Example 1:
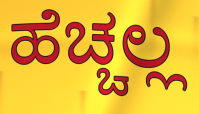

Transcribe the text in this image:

ಹೆಚ್ಚಲ್ಲ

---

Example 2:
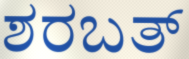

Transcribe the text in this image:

ಶರಬತ್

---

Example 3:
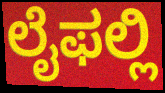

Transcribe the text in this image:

ಲೈಫಲ್ಲಿ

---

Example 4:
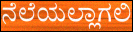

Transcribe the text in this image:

ನೆಲೆಯಲ್ಲಾಗಲಿ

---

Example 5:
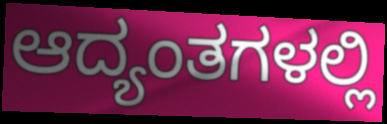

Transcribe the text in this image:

ಆದ್ಯಂತಗಳಲ್ಲಿ